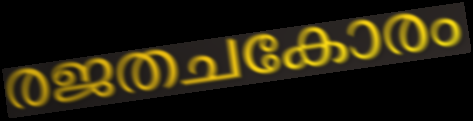
രജതചകോരം